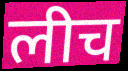
लीच